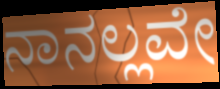
ನಾನಲ್ಲವೇ